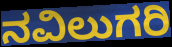
ನವಿಲುಗರಿ